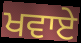
ਖਵਾਏ